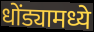
धोंड्यामध्ये